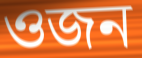
ওজন